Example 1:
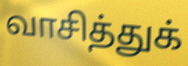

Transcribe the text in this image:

வாசித்துக்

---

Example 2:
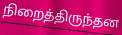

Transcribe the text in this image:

நிறைத்திருந்தன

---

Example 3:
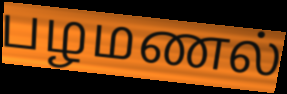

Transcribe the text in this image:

பழமணல்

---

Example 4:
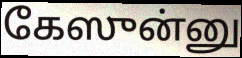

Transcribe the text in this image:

கேஸுன்னு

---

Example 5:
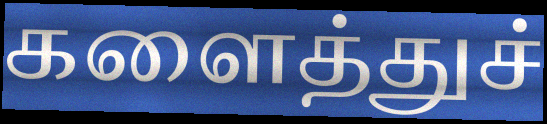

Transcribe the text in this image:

களைத்துச்